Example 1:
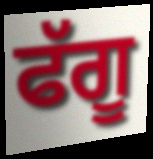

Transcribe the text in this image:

ਫੱਗੂ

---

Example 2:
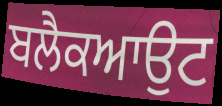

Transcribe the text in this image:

ਬਲੈਕਆਉਟ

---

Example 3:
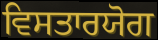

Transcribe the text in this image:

ਵਿਸਤਾਰਯੋਗ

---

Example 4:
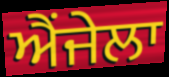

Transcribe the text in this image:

ਐਂਜੇਲਾ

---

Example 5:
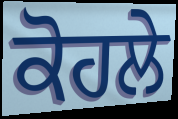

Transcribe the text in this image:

ਕੋਹਲੇ